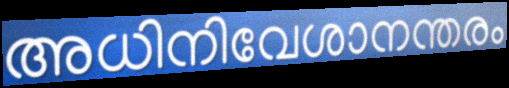
അധിനിവേശാനന്തരം